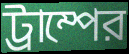
ট্রাম্পের